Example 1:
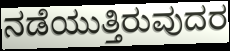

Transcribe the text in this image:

ನಡೆಯುತ್ತಿರುವುದರ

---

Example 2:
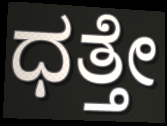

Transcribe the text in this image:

ಧತ್ತೇ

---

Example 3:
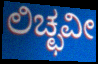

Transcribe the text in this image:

ಲಿಚ್ಛವೀ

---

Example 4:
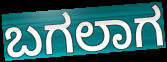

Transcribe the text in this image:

ಬಗಲಾಗ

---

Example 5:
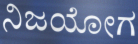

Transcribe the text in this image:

ನಿಜಯೋಗ